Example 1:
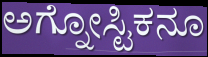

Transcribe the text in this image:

ಅಗ್ನೋಸ್ಟಿಕನೂ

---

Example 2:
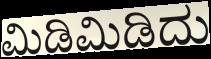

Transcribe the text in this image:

ಮಿಡಿಮಿಡಿದು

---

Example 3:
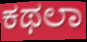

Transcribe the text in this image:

ಕಥಲಾ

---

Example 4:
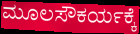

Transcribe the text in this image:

ಮೂಲಸೌಕರ್ಯಕ್ಕೆ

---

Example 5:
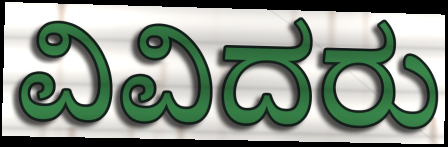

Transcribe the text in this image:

ವಿವಿದರು